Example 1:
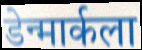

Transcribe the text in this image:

डेन्मार्कला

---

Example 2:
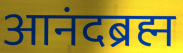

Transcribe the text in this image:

आनंदब्रह्म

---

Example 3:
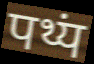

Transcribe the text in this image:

पथ्यं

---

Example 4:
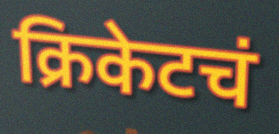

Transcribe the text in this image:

क्रिकेटचं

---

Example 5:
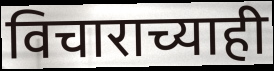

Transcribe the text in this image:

विचाराच्याही